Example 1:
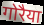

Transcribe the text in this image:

गोरैया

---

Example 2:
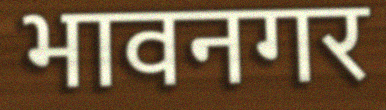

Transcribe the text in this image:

भावनगर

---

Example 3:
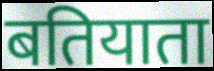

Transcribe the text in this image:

बतियाता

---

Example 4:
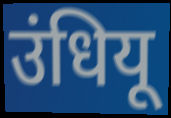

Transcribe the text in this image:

उंधियू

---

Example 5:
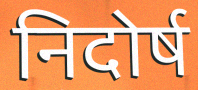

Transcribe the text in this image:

निदोर्ष